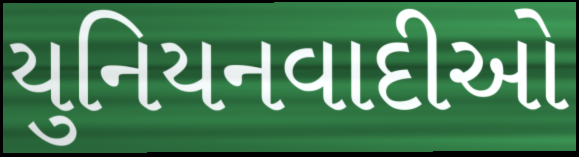
યુનિયનવાદીઓ